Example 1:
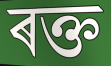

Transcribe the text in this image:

ৰক্ত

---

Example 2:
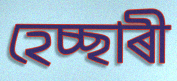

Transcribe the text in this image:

হেচ্ছাৰী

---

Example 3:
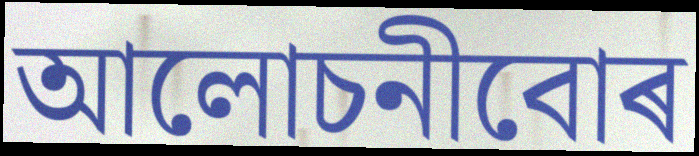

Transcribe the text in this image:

আলোচনীবোৰ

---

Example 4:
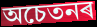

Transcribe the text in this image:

অচেতনৰ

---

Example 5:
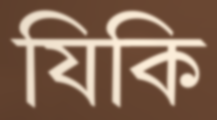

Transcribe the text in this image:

যিকি